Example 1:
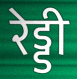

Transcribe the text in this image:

रेड्डी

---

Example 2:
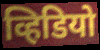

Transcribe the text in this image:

व्हिडियो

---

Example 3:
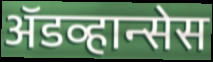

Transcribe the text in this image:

ॲडव्हान्सेस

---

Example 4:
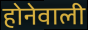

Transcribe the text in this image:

होनेवाली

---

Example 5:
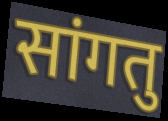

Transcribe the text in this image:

सांगतु